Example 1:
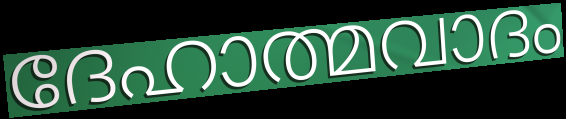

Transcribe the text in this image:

ദേഹാത്മവാദം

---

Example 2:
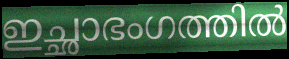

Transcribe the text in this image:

ഇച്ഛാഭംഗത്തിൽ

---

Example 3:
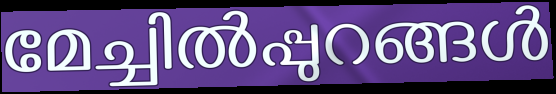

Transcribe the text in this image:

മേച്ചിൽപ്പുറങ്ങൾ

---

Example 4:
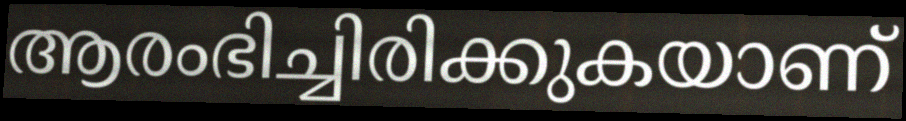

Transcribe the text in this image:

ആരംഭിച്ചിരിക്കുകയാണ്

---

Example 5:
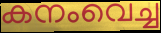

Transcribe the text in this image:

കനംവെച്ച